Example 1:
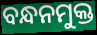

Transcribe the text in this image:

ବନ୍ଧନମୁକ୍ତ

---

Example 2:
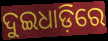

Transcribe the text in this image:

ଦୁଇଧାଡ଼ିରେ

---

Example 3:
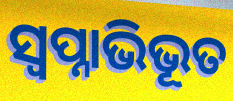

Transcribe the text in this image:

ସ୍ଵପ୍ନାଭିଭୂତ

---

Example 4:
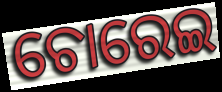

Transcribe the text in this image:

ଚୋରେଇ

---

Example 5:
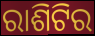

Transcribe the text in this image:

ରାଶିଟିର